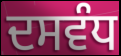
ਦਸਵੰਧ